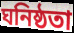
ঘনিষ্ঠতা